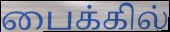
பைக்கில்